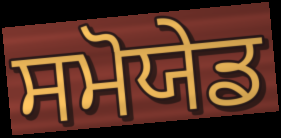
ਸਮੋਯੇਡ